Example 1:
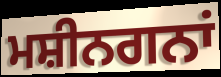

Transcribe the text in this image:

ਮਸ਼ੀਨਗਨਾਂ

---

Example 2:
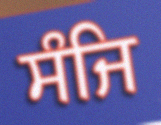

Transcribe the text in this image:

ਸੰਜਿ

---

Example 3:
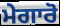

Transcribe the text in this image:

ਮੇਗਾਰੋ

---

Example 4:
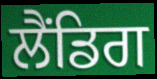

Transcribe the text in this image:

ਲੈਂਡਿਗ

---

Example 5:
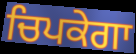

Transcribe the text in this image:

ਚਿਪਕੇਗਾ